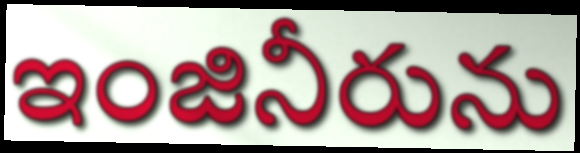
ఇంజినీరును